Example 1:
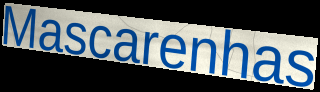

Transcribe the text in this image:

Mascarenhas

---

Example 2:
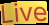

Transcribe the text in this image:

Live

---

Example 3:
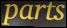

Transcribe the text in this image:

parts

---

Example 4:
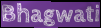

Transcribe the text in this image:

Bhagwati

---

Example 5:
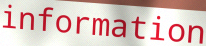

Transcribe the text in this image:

information